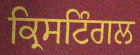
ਕ੍ਰਿਸਟਿੰਗਲ